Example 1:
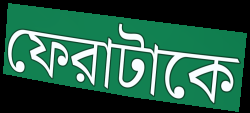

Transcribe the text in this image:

ফেরাটাকে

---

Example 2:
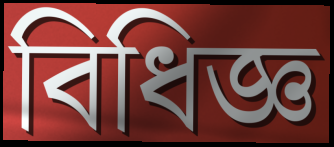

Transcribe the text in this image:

বিধিজ্ঞ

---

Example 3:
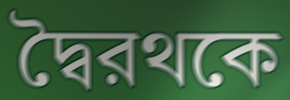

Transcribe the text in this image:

দ্বৈরথকে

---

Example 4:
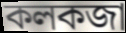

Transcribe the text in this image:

কলকজা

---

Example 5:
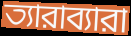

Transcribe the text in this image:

ত্যারাব্যারা